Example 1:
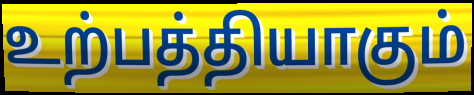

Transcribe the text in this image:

உற்பத்தியாகும்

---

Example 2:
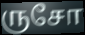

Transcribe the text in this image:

ருசோ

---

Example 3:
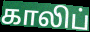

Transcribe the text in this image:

காலிப்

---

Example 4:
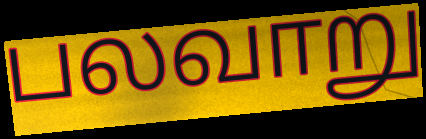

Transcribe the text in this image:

பலவாறு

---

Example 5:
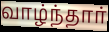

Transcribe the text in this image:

வாழ்ந்தார்